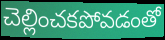
చెల్లించకపోవడంతో